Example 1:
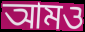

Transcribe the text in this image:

আমও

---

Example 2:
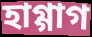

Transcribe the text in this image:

হাগ্গাগ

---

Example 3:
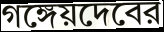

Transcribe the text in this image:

গঙ্গেয়দেবের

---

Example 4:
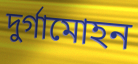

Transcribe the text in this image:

দুর্গামোহন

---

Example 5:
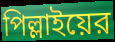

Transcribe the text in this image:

পিল্লাইয়ের